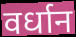
वर्धान